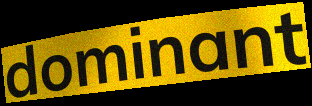
dominant